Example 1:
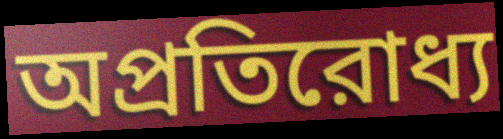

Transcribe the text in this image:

অপ্রতিরোধ্য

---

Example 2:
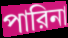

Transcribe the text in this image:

পারিনা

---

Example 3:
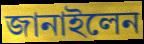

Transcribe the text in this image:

জানাইলেন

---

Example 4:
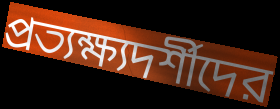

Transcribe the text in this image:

প্রত্যক্ষ্যদর্শীদের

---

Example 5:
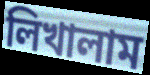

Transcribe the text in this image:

লিখালাম